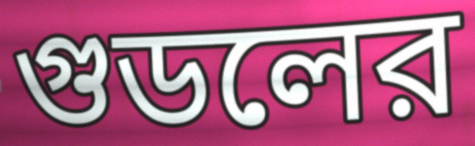
গুডলের